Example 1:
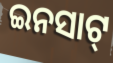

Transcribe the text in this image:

ଇନସାଟ୍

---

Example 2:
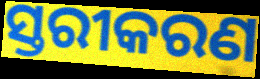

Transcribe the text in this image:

ସ୍ତରୀକରଣ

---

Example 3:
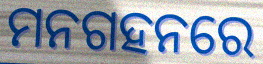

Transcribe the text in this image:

ମନଗହନରେ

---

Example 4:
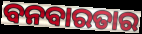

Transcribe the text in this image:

ବନବାରତାର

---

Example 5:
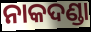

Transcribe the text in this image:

ନାକଦଣ୍ଡା